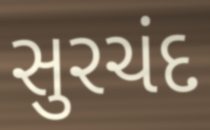
સુરચંદ